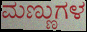
ಮಣ್ಣುಗಳ